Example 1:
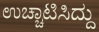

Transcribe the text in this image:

ಉಚ್ಚಾಟಿಸಿದ್ದು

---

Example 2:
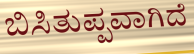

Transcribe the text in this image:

ಬಿಸಿತುಪ್ಪವಾಗಿದೆ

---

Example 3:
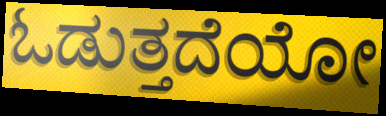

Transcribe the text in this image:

ಓಡುತ್ತದೆಯೋ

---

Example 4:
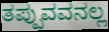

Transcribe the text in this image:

ತಪ್ಪುವವನಲ್ಲ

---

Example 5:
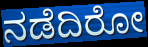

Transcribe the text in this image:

ನಡೆದಿರೋ